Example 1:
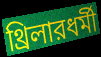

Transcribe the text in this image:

থ্রিলারধর্মী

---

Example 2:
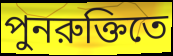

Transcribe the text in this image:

পুনরুক্তিতে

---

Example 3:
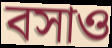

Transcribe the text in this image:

বসাও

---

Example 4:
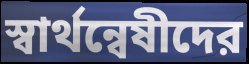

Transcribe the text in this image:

স্বার্থন্বেষীদের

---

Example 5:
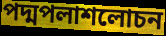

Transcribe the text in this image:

পদ্মপলাশলোচন